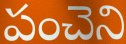
పంచెని